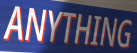
ANYTHING